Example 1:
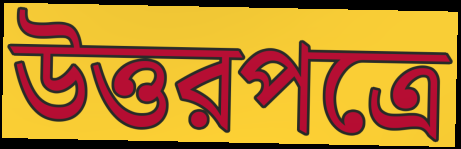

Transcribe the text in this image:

উত্তরপত্রে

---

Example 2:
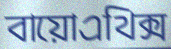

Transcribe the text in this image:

বায়োএথিক্স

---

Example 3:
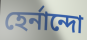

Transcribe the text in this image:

হের্নান্দো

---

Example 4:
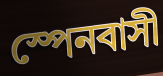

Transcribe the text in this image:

স্পেনবাসী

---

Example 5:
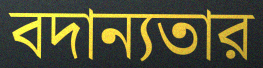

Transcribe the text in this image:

বদান্যতার